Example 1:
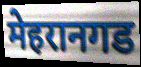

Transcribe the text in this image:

मेहरानगड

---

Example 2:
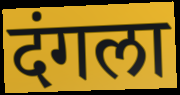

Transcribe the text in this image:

दंगला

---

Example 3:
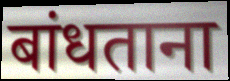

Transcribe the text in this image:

बांधताना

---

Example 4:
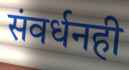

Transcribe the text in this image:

संवर्धनही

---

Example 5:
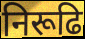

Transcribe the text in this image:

निरूढि